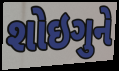
શોઇગુને